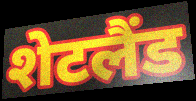
शेटलैंड